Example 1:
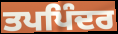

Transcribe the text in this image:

ਤਪਪਿੰਦਰ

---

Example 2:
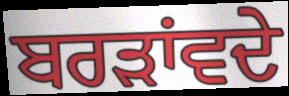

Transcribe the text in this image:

ਬਰੜਾਂਵਦੇ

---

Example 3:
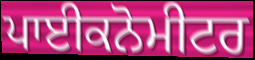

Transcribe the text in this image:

ਪਾਈਕਨੋਮੀਟਰ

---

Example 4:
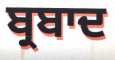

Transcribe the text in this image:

ਬ੍ਰਬਾਦ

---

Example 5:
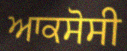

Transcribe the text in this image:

ਆਕਸੋਸੀ